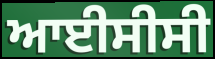
ਆਈਸੀਸੀ